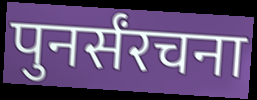
पुनर्संरचना